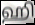
ஹி